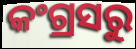
କଂଗ୍ରସରୁ